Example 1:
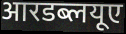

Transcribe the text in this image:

आरडब्लयूए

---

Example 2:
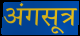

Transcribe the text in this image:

अंगसूत्र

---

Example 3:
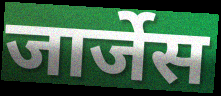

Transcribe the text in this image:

जार्जेस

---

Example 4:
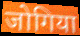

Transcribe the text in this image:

जोगिया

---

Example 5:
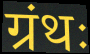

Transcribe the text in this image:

ग्रंथः